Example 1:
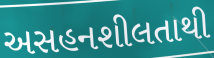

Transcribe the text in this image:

અસહનશીલતાથી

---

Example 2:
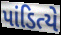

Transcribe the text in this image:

પાંડિત્યે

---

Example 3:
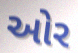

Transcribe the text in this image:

ઓર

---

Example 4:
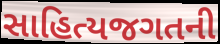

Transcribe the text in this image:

સાહિત્યજગતની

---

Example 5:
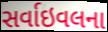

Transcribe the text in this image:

સર્વાઇવલના